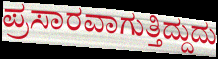
ಪ್ರಸಾರವಾಗುತ್ತಿದ್ದುದು